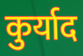
कुर्याद